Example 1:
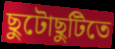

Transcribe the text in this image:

ছুটোছুটিতে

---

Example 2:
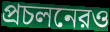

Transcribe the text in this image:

প্রচলনেরও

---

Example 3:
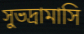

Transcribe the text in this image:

সুভদ্রামাসি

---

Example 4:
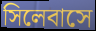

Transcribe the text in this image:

সিলেবাসে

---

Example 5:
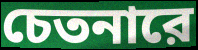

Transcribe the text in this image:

চেতনারে